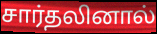
சார்தலினால்